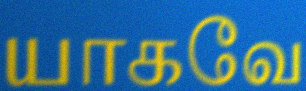
யாகவே